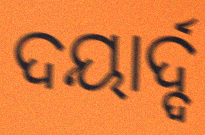
ଦୟାର୍ଦ୍ଦ